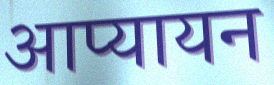
आप्यायन